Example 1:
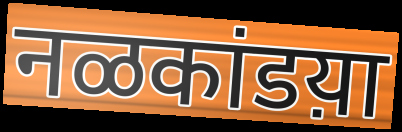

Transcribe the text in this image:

नळकांडय़ा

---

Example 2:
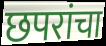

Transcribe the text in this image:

छपरांचा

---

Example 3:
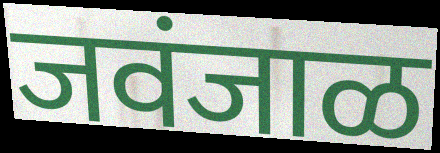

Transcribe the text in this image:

जवंजाळ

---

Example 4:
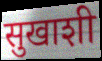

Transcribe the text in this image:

सुखाशी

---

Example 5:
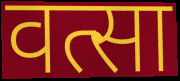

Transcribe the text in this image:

वत्सा